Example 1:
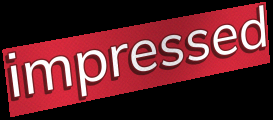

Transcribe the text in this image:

impressed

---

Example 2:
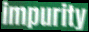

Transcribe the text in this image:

impurity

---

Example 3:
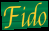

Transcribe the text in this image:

Fido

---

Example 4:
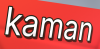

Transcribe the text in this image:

kaman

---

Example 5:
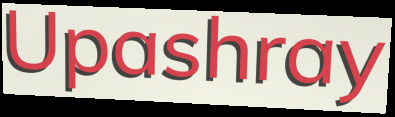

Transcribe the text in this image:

Upashray